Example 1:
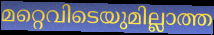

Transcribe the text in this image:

മറ്റെവിടെയുമില്ലാത്ത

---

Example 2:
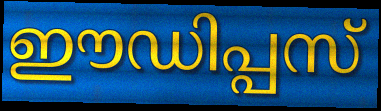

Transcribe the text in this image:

ഈഡിപ്പസ്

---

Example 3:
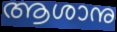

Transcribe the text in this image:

ആശാനു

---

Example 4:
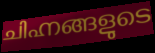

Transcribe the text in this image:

ചിഹ്നങ്ങളുടെ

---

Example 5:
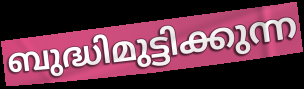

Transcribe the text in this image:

ബുദ്ധിമുട്ടിക്കുന്ന